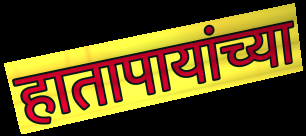
हातापायांच्या